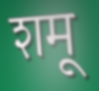
शमू